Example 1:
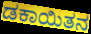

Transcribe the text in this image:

ಡಕಾಯಿತನ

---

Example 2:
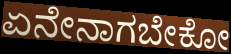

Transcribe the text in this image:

ಏನೇನಾಗಬೇಕೋ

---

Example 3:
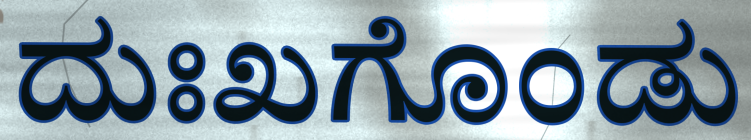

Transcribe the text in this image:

ದುಃಖಗೊಂಡು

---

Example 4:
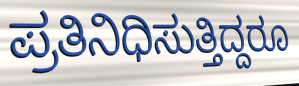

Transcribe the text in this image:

ಪ್ರತಿನಿಧಿಸುತ್ತಿದ್ದರೂ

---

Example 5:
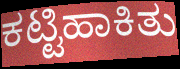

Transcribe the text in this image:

ಕಟ್ಟಿಹಾಕಿತು